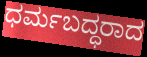
ಧರ್ಮಬದ್ಧರಾದ